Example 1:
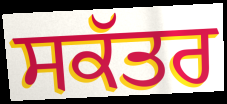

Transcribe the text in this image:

ਸਕੱਤਰ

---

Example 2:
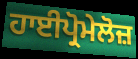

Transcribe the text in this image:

ਹਾਈਪ੍ਰੋਮੇਲੋਜ਼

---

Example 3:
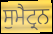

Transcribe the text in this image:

ਸੁਮੈਟ੍ਰਨ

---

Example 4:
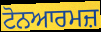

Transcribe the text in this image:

ਟੋਨਆਰਮਜ਼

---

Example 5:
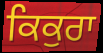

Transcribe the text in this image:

ਕਿਕੁਰਾ